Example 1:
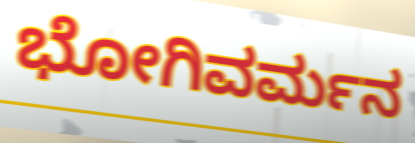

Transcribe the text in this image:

ಭೋಗಿವರ್ಮನ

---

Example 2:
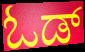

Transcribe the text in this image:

ಓಡ್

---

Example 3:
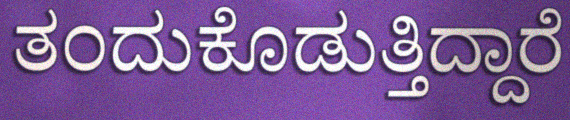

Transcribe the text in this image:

ತಂದುಕೊಡುತ್ತಿದ್ದಾರೆ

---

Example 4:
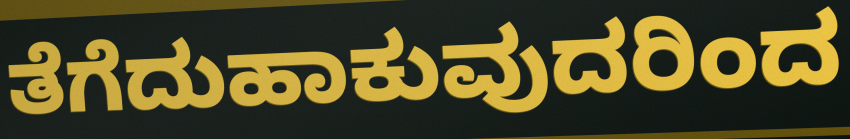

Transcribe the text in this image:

ತೆಗೆದುಹಾಕುವುದರಿಂದ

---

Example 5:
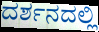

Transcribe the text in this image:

ದರ್ಶನದಲ್ಲಿ